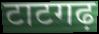
टाटगढ़